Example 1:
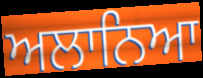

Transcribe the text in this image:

ਅਲਾਨਿਆ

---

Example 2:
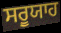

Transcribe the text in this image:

ਸਰੂਯਾਹ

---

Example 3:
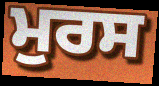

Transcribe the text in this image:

ਮੁਰਸ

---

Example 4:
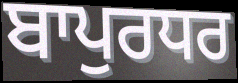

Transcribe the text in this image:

ਬਾਪੁਰਧਰ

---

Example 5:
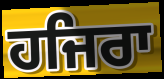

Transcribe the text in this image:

ਹਜਿਰਾ